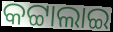
କଟ୍ଟାଲାଇ